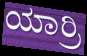
ಯಾರ್ರಿ